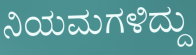
ನಿಯಮಗಳಿದ್ದು